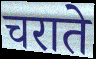
चराते